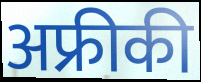
अफ्रीकी